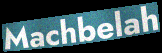
Machbelah